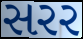
સરર